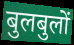
बुलबुलों